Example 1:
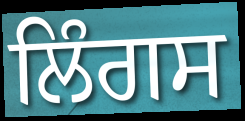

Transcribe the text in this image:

ਲਿੰਗਸ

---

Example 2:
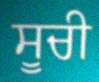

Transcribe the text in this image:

ਸੂਚੀ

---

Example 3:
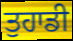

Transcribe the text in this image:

ਤੁਹਾਡੀ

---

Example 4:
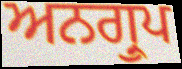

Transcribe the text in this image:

ਅਨਗ੍ਰੁਪ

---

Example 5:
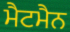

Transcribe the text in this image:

ਮੈਟਮੈਨ